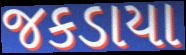
જકડાયા